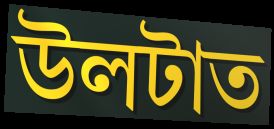
উলটাত